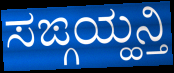
ಸಙ್ಗಯ್ಹನ್ತಿ